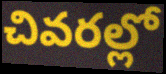
చివరల్లో